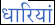
धारियां